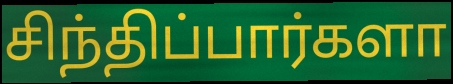
சிந்திப்பார்களா